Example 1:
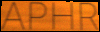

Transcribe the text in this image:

APHR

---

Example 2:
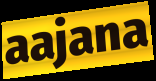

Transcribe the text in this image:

aajana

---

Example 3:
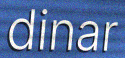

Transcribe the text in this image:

dinar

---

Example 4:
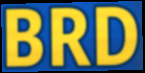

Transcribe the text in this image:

BRD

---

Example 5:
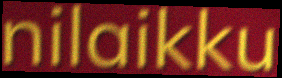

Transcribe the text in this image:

nilaikku